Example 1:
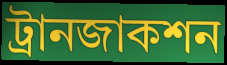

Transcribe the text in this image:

ট্রানজাকশন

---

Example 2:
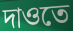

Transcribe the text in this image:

দাওতে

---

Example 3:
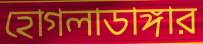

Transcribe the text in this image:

হোগলাডাঙ্গার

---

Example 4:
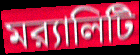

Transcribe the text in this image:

মর‍্যালিটি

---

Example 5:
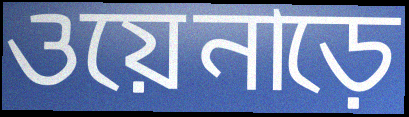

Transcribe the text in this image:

ওয়েনাড়ে